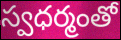
స్వధర్మంతో